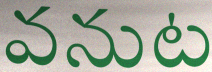
వనుట